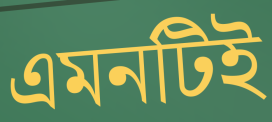
এমনটিই